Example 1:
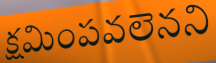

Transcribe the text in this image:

క్షమింపవలెనని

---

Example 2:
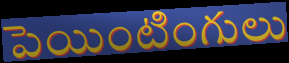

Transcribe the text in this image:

పెయింటింగులు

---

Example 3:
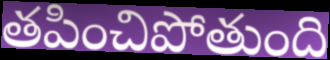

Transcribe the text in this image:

తపించిపోతుంది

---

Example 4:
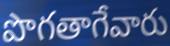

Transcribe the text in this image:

పొగతాగేవారు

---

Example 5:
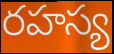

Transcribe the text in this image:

రహస్య